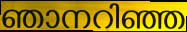
ഞാനറിഞ്ഞ